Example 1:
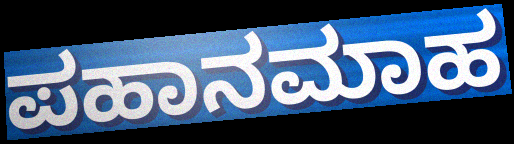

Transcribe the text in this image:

ಪಹಾನಮಾಹ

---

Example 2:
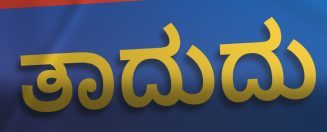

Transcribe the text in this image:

ತಾದುದು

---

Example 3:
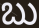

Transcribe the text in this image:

ಬು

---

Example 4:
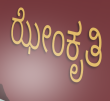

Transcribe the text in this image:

ಝೇಂಕೃತಿ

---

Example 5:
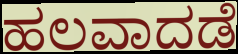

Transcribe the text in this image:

ಹಲವಾದಡೆ